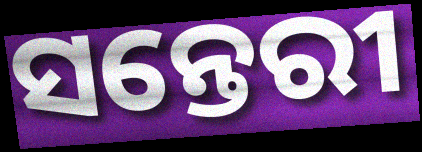
ସନ୍ତେରୀ